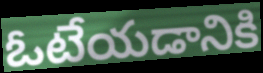
ఓటేయడానికి